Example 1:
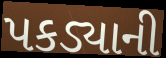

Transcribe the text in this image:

પકડ્યાની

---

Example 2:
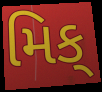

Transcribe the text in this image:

મિક્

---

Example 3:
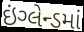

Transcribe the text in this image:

ઇંગ્લેન્ડમાં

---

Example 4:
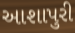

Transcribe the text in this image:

આશાપુરી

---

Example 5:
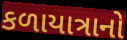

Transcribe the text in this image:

કળાયાત્રાનો